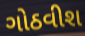
ગોઠવીશ